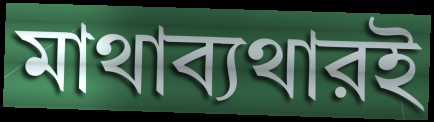
মাথাব্যথারই